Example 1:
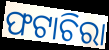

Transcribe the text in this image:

ଫଟାଚିରା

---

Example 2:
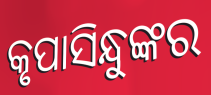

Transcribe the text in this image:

କୃପାସିନ୍ଧୁଙ୍କର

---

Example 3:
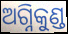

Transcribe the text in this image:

ଅଗ୍ନିକୁଣ୍ଡ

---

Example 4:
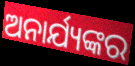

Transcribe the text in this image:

ଅନାର୍ଯ୍ୟଙ୍କର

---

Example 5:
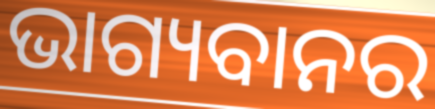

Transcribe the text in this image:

ଭାଗ୍ୟବାନର